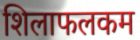
शिलाफलकम